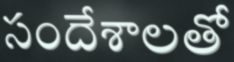
సందేశాలతో